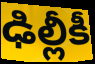
ఢిల్లీకీ